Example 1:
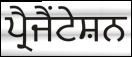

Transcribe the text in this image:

ਪ੍ਰੈਜੈਂਟੇਸ਼ਨ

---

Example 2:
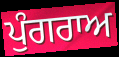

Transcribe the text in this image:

ਪੁੰਗਰਾਅ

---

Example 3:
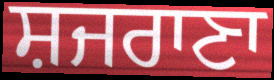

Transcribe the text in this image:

ਸ਼ਜਰਾਣਾ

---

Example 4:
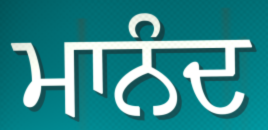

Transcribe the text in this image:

ਮਾਨੰਦ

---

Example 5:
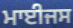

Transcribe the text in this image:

ਮਾਈਜਸ